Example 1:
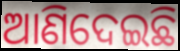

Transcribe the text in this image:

ଆଣିଦେଇଛି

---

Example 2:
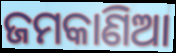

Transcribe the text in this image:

ଜମକାଣିଆ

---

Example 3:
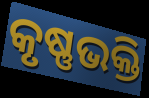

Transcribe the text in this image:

କୃଷ୍ଣଭକ୍ତି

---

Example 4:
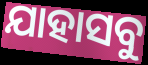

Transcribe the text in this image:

ଯାହାସବୁ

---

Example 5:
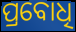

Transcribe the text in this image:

ପ୍ରବୋଧି